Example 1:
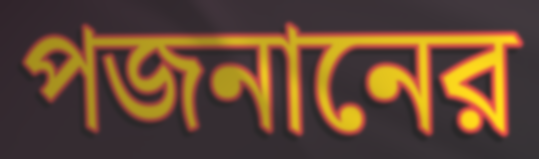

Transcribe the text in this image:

পজনানের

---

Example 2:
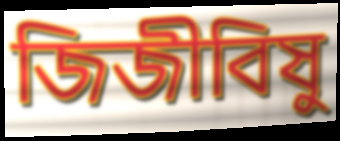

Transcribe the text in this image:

জিজীবিষু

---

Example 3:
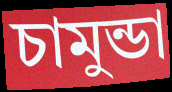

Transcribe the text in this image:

চামুন্ডা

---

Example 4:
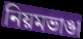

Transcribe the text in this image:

নিয়মভাঙা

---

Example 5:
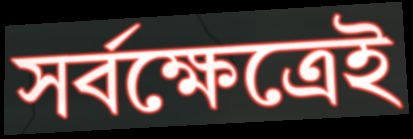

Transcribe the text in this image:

সর্বক্ষেত্রেই